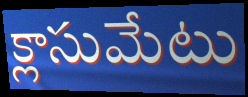
క్లాసుమేటు